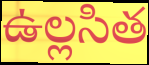
ఉల్లసిత